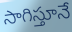
సాగిస్తూనే